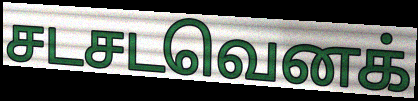
சடசடவெனக்